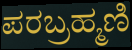
ಪರಬ್ರಹ್ಮಣಿ